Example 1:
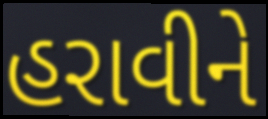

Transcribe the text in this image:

હરાવીને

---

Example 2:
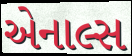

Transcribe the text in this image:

એનાલ્સ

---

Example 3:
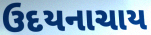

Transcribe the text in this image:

ઉદયનાચાય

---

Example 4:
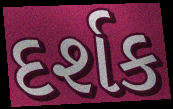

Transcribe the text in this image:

દર્શક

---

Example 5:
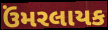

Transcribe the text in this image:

ઉંમરલાયક